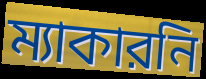
ম্যাকারনি